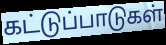
கட்டுப்பாடுகள்